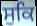
ਸੁਕਿ